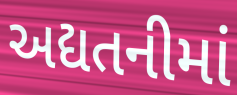
અદ્યતનીમાં